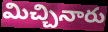
మిచ్చినారు